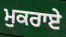
ਮੁਕਰਾਏ